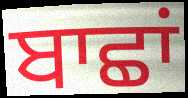
ਬਾਛਾਂ